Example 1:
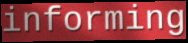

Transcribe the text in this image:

informing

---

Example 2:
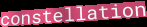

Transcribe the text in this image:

constellation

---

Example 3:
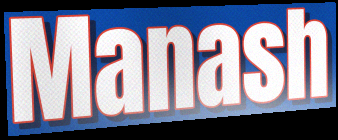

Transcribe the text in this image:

Manash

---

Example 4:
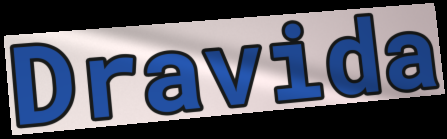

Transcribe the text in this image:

Dravida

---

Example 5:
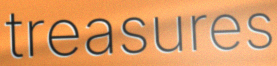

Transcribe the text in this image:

treasures